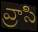
వ్రాసి